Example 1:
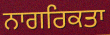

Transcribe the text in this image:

ਨਾਗਰਿਕਤਾ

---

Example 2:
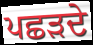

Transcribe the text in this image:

ਪਛੜਦੇ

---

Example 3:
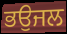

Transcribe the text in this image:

ਭਉਜਲ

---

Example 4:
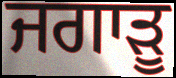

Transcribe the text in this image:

ਜਗਾੜੂ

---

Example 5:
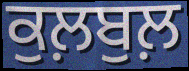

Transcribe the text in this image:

ਕੁਲ਼ਬੁਲ਼